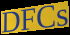
DFCs